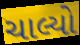
ચાલ્યો